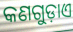
କଣଗୁଡ଼ାଏ